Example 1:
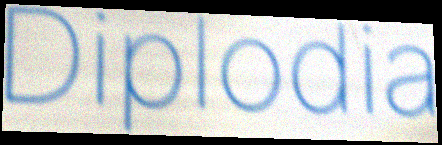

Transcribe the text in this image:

Diplodia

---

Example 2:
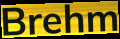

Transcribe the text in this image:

Brehm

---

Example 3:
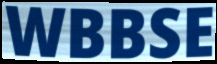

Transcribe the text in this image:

WBBSE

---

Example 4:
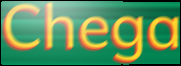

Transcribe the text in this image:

Chega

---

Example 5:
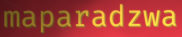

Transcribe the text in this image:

maparadzwa